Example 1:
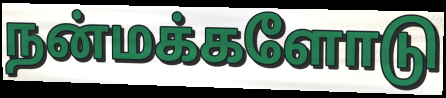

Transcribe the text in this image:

நன்மக்களோடு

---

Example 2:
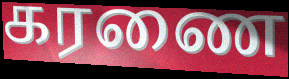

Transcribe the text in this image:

கரணை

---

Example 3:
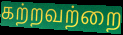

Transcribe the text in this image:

கற்றவற்றை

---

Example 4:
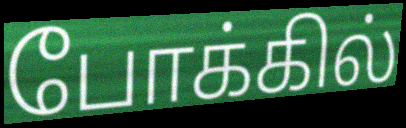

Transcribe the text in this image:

போக்கில்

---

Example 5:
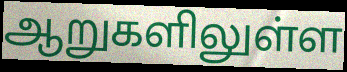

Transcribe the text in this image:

ஆறுகளிலுள்ள